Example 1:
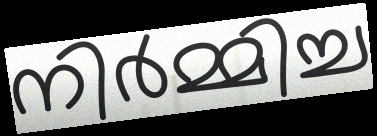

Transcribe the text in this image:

നിർമ്മിച്ച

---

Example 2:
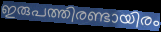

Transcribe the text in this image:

ഇരുപത്തിരണ്ടായിരം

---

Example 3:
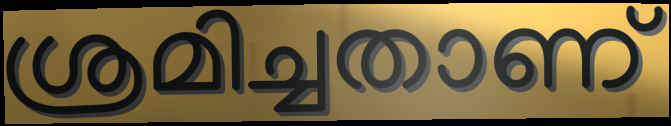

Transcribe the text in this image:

ശ്രമിച്ചതാണ്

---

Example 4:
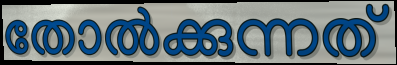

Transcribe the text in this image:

തോൽക്കുന്നത്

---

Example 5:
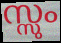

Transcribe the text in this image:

സ്സും